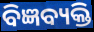
ବିଜ୍ଞବ୍ୟକ୍ତି